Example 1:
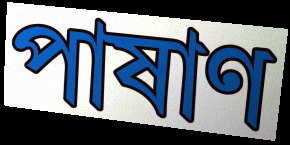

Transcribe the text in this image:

পাষাণ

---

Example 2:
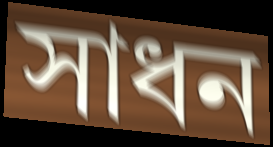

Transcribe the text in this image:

সাধন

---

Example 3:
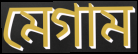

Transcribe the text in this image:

মেগাম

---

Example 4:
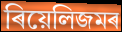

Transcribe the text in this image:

ৰিয়েলিজমৰ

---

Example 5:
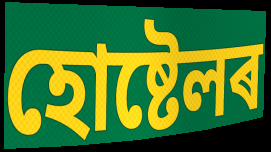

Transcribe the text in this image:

হোষ্টেলৰ